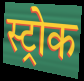
स्‍ट्रोक